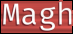
Magh